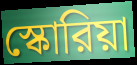
স্কোরিয়া